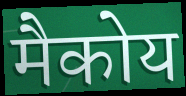
मैकोय